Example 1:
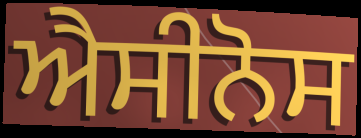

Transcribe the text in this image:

ਐਸੀਨੋਸ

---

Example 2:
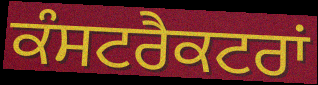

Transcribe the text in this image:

ਕੰਸਟਰੈਕਟਰਾਂ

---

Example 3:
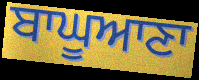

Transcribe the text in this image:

ਬਾਘੂਆਣਾ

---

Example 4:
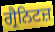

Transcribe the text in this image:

ਗ੍ਰੈਨਿਟਜ਼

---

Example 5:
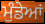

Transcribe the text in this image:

ਮੁੰਡੇਆਂ